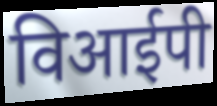
विआईपी